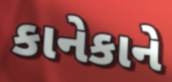
કાનેકાને